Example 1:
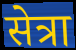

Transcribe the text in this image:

सेत्रा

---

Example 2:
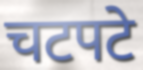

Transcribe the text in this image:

चटपटे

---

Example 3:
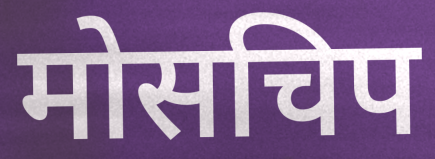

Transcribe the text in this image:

मोसचिप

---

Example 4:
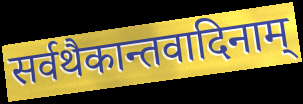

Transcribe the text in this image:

सर्वथैकान्तवादिनाम्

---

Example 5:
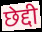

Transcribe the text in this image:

छेद्दी